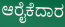
ಆರೈಕೆದಾರ